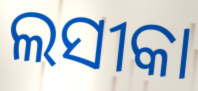
ଲସୀକା